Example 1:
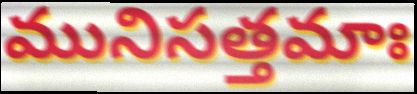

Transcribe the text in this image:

మునిసత్తమాః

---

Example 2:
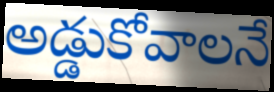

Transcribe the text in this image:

అడ్డుకోవాలనే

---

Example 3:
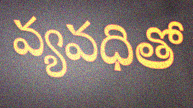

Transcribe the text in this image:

వ్యవధితో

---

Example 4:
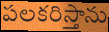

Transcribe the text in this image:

పలకరిస్తాను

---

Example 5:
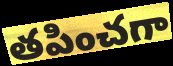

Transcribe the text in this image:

తపించగా